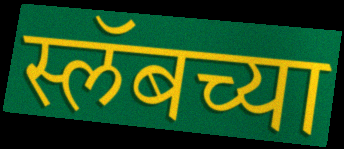
स्लॅबच्या